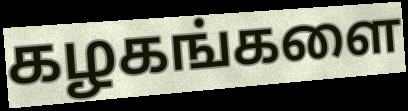
கழகங்களை